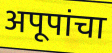
अपूपांचा